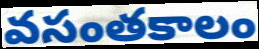
వసంతకాలం